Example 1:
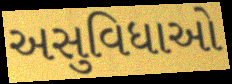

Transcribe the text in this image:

અસુવિધાઓ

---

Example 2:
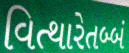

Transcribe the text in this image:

વિત્થારેતબ્બં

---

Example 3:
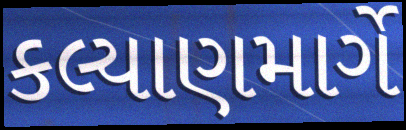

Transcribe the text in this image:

કલ્યાણમાર્ગે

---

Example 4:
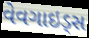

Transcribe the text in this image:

વેવગાઇડ્સ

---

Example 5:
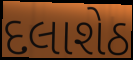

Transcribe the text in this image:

દલાશેઠ